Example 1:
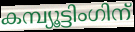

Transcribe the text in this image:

കമ്പ്യൂട്ടിംഗിന്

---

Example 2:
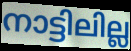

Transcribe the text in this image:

നാട്ടിലില്ല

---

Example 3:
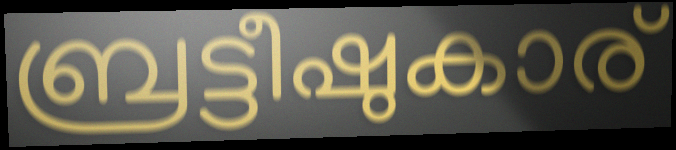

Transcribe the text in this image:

ബ്രട്ടീഷുകാര്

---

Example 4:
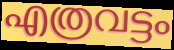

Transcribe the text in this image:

എത്രവട്ടം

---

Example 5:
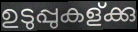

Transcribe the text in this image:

ഉടുപ്പുകള്ക്കു